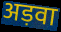
अड़वा